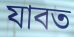
যাবত